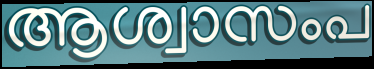
ആശ്വാസംപ